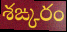
శఙ్కరం